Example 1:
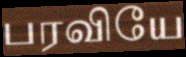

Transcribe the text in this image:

பரவியே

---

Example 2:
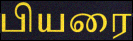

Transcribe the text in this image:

பியரை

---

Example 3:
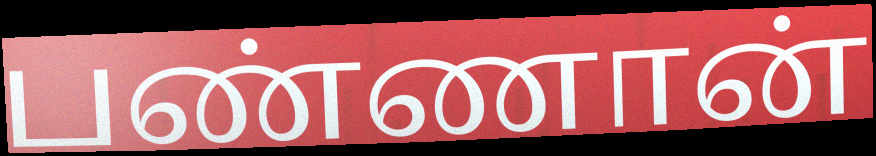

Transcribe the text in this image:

பண்ணான்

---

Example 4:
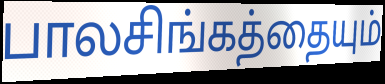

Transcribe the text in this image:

பாலசிங்கத்தையும்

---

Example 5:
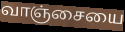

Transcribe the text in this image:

வாஞ்சையை